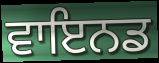
ਵਾਇਨਡ